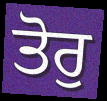
ਤੋਰੁ